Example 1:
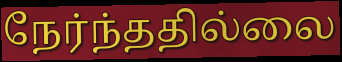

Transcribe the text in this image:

நேர்ந்ததில்லை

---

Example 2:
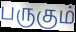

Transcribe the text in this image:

பருகும்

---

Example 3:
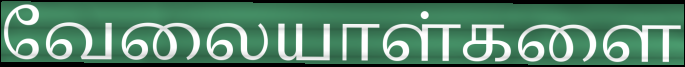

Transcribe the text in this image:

வேலையாள்களை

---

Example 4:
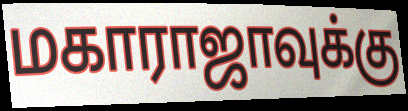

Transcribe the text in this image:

மகாராஜாவுக்கு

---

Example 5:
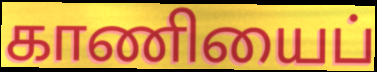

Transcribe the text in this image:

காணியைப்